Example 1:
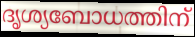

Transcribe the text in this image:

ദൃശ്യബോധത്തിന്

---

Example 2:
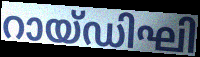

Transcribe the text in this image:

റായ്ഡിഘി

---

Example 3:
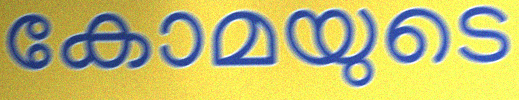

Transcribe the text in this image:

കോമയുടെ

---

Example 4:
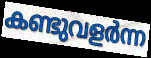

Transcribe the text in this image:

കണ്ടുവളർന്ന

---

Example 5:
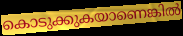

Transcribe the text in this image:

കൊടുക്കുകയാണെങ്കിൽ